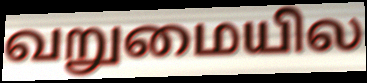
வறுமையில